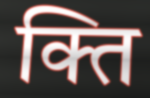
क्ति